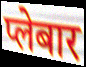
प्लेबार